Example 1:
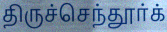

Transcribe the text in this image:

திருச்செந்தூர்க்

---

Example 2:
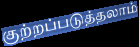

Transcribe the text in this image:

குற்றப்படுத்தலாம்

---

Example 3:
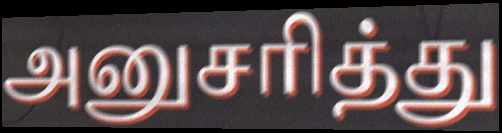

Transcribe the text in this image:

அனுசரித்து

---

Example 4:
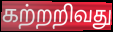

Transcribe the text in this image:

கற்றறிவது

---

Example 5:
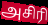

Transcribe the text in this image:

அசிரி